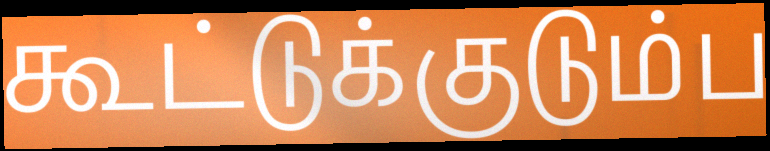
கூட்டுக்குடும்ப